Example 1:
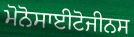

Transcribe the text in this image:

ਮੋਨੋਸਾਈਟੋਜੀਨਸ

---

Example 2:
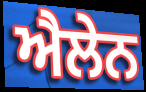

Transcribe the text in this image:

ਐਲੇਨ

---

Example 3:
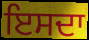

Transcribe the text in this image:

ਇਸਦਾ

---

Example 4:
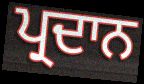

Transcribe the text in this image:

ਪ੍ਰਦਾਨ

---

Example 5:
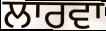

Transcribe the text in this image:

ਲਾਰਵਾ